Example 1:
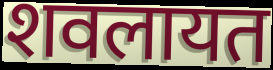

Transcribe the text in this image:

शवलायत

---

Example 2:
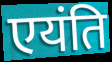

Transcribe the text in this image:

एयंति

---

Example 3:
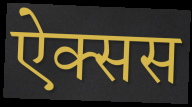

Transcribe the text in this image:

ऐक्सस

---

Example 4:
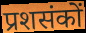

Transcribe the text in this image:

प्रशसंकों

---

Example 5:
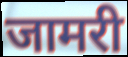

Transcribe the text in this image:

जामरी